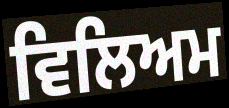
ਵਿਲਿਅਮ